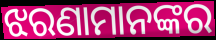
ଝରଣାମାନଙ୍କର